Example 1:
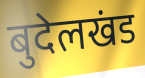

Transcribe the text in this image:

बुदेलखंड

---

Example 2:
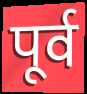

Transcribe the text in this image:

पूर्व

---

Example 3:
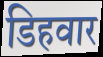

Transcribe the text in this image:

डिहवार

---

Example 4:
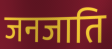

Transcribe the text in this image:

जनजाति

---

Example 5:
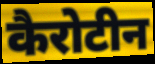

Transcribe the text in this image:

कैरोटीन